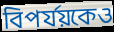
বিপর্যয়কেও